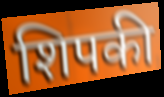
शिपकी